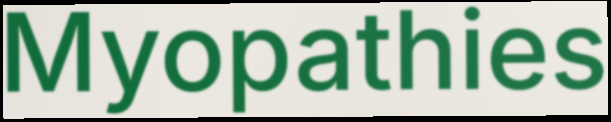
Myopathies